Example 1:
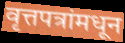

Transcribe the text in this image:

वृत्तपत्रांमधून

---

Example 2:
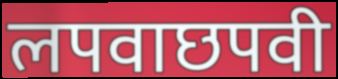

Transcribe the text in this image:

लपवाछपवी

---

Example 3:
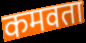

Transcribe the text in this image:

कमवता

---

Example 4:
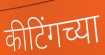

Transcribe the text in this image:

कीटिंगच्या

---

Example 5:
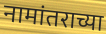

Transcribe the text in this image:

नामांतराच्या